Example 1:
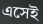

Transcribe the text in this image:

এসেই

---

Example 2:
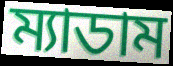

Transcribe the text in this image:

ম্যাডাম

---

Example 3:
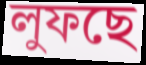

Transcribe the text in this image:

লুফছে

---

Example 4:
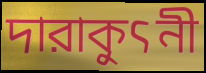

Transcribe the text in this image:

দারাকুৎনী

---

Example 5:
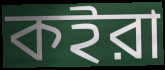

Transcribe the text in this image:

কইরা